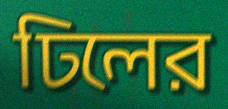
ঢিলের